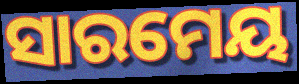
ସାରମେୟ